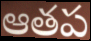
ఆతప